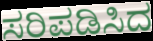
ಸರಿಪಡಿಸಿದ